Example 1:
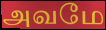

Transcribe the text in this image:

அவமே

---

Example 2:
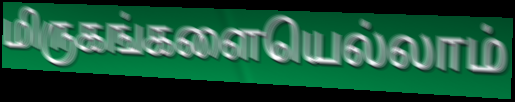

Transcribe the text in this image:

மிருகங்களையெல்லாம்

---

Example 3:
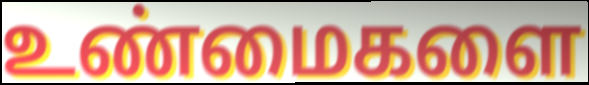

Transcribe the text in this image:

உண்மைகளை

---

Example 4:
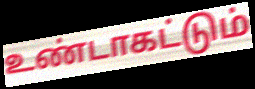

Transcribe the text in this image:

உண்டாகட்டும்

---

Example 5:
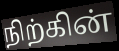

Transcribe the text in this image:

நிற்கின்